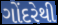
ગોંદરેથી